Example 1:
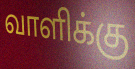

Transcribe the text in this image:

வாளிக்கு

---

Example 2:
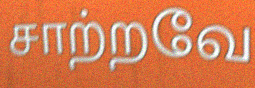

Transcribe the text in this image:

சாற்றவே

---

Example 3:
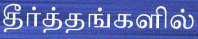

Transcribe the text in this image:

தீர்த்தங்களில்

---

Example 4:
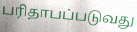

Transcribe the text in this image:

பரிதாபப்படுவது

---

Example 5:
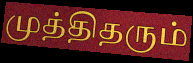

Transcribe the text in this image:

முத்திதரும்